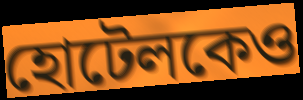
হোটেলকেও